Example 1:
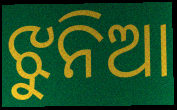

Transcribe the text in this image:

ଝୁନିଆ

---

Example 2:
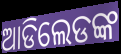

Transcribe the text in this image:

ଆଡିଲେଡଙ୍କ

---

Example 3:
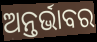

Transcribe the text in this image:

ଅନ୍ତର୍ଭାବର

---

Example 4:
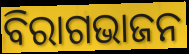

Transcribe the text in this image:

ବିରାଗଭାଜନ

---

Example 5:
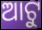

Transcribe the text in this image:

ଆଟୁ